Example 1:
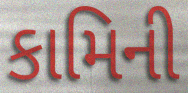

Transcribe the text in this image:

કામિની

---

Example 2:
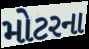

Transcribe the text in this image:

મોટરના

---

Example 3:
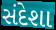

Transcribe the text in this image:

સંદેશા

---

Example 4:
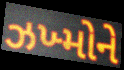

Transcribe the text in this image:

ઝખ્મોને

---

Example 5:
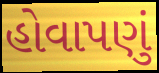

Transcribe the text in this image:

હોવાપણું